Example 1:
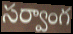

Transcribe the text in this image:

సర్వాంగ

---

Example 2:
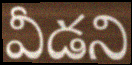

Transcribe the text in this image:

వీడని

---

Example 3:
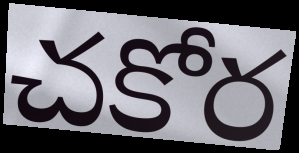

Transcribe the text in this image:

చకోర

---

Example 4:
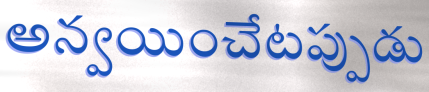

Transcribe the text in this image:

అన్వయించేటప్పుడు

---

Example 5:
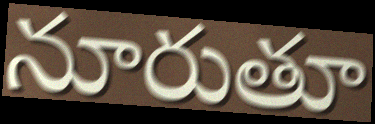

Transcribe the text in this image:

నూరుతూ